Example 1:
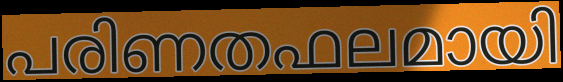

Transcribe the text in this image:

പരിണതഫലമായി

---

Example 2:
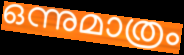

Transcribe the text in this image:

ഒന്നുമാത്രം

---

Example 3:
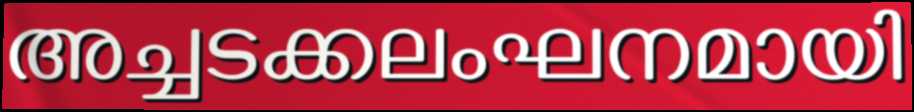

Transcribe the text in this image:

അച്ചടക്കലംഘനമായി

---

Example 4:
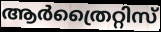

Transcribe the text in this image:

ആർത്രൈറ്റിസ്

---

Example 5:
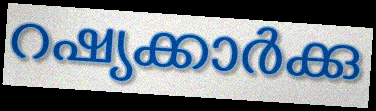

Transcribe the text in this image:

റഷ്യക്കാർക്കു